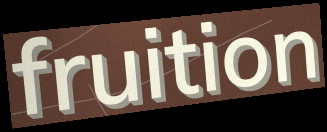
fruition